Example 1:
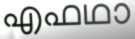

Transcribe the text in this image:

എഫഥാ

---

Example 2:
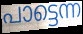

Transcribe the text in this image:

പാട്ടെന്ന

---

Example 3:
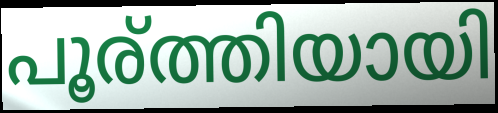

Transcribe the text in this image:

പൂര്ത്തിയായി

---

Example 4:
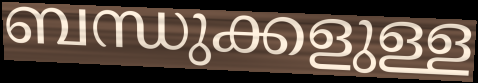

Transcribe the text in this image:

ബന്ധുക്കളുള്ള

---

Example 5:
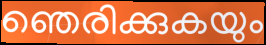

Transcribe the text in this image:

ഞെരിക്കുകയും